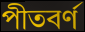
পীতবর্ণ